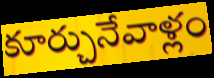
కూర్చునేవాళ్లం